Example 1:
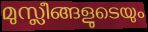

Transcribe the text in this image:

മുസ്ലീങ്ങളുടെയും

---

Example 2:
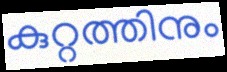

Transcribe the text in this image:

കുറ്റത്തിനും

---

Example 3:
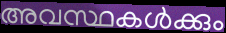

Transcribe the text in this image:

അവസ്ഥകൾക്കും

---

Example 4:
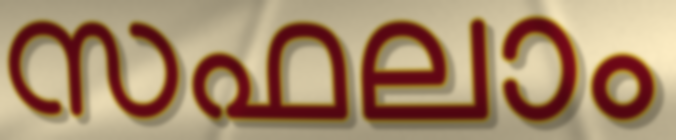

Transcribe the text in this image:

സഫലാം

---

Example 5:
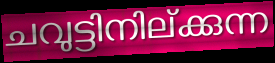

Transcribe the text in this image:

ചവുട്ടിനില്ക്കുന്ന